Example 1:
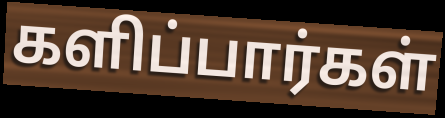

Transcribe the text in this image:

களிப்பார்கள்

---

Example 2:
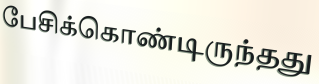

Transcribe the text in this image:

பேசிக்கொண்டிருந்தது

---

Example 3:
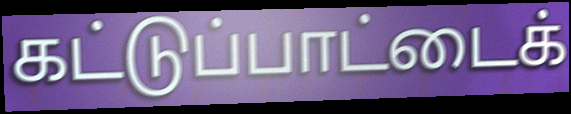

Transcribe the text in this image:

கட்டுப்பாட்டைக்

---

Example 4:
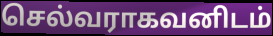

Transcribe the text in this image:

செல்வராகவனிடம்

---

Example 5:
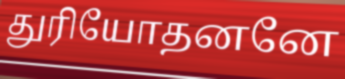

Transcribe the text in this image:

துரியோதனனே